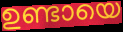
ഉണ്ടായെ